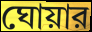
ঘোয়ার